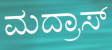
ಮದ್ರಾಸ್